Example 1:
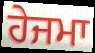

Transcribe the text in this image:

ਹੇਜਮਾ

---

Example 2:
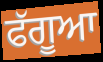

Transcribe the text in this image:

ਫੱਗੂਆ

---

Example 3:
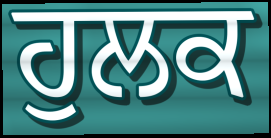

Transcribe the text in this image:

ਹੁਲਕ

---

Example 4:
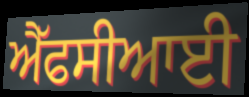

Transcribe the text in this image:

ਐੱਫਸੀਆਈ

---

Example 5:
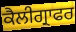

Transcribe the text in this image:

ਕੈਲੀਗ੍ਰਾਫਰ